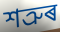
শত্ৰুৰ